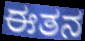
ಈತನ